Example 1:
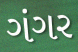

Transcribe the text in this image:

ગંગર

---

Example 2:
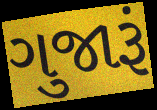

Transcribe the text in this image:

ગુજારૂં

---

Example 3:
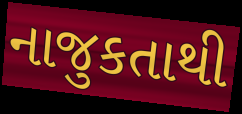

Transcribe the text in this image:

નાજુકતાથી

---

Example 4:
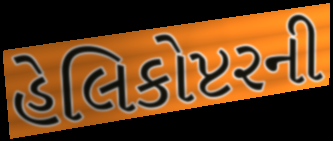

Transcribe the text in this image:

હેલિકોપ્ટરની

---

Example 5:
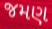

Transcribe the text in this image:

જમણ